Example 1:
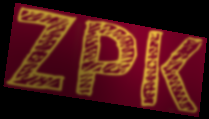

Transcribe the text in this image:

ZPK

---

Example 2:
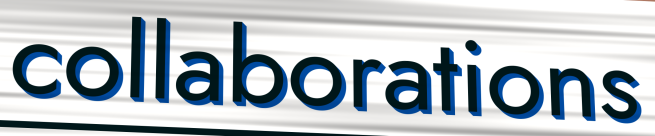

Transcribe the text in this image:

collaborations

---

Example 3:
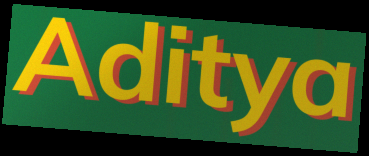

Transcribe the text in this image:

Aditya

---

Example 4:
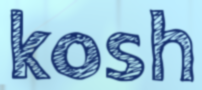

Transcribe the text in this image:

kosh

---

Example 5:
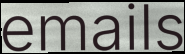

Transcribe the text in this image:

emails